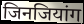
जिनजियांग